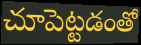
చూపెట్టడంతో